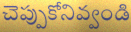
చెప్పుకోనివ్వండి